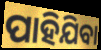
ପାହିଯିବା